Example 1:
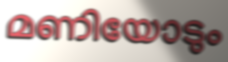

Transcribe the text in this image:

മണിയോടും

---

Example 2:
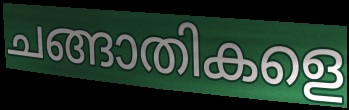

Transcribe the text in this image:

ചങ്ങാതികളെ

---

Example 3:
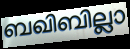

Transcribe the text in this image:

ബഖിബില്ലാ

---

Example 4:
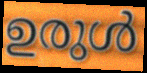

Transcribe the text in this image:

ഉരുൾ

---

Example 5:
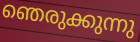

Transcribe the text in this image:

ഞെരുക്കുന്നു